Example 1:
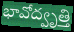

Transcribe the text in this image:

భావోద్వృత్తి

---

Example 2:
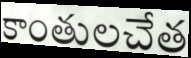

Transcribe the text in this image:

కాంతులచేత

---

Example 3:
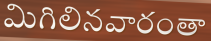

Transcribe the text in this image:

మిగిలినవారంతా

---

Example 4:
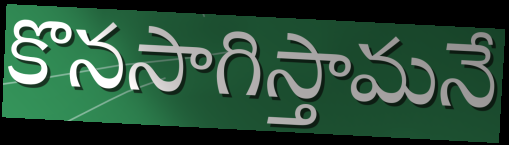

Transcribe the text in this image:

కొనసాగిస్తామనే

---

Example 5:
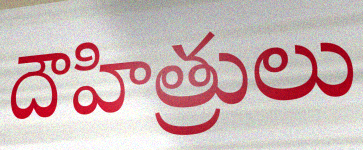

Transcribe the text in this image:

దౌహిత్రులు